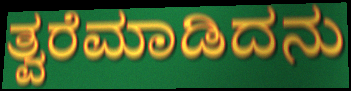
ತ್ವರೆಮಾಡಿದನು